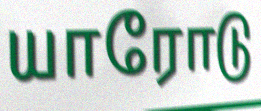
யாரோடு